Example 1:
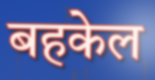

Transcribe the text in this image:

बहकेल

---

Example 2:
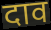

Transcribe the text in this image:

दाव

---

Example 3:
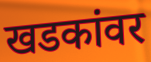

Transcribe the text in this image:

खडकांवर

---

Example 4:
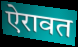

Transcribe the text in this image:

ऐरावत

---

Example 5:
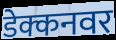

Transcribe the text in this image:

डेक्कनवर